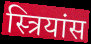
स्त्रियांस